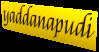
yaddanapudi